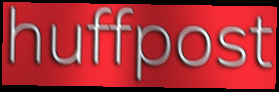
huffpost